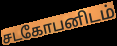
சடகோபனிடம்